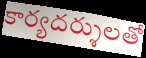
కార్యదర్శులతో